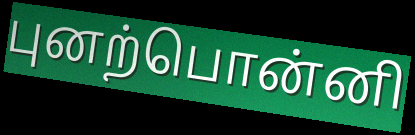
புனற்பொன்னி